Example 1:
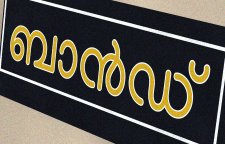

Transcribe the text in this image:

ബാൻഡ്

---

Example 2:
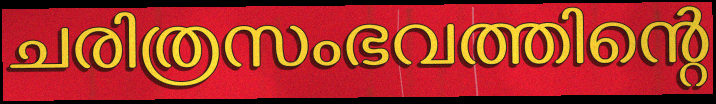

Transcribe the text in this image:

ചരിത്രസംഭവത്തിന്റെ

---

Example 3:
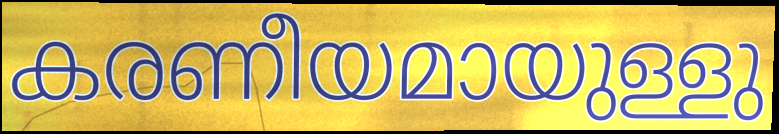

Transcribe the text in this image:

കരണീയമായുള്ളു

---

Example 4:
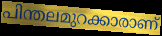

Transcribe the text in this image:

പിന്തലമുറക്കാരാണ്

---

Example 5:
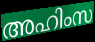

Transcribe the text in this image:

അഹിംസ